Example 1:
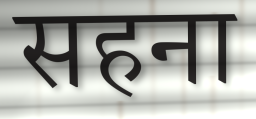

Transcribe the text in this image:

सहना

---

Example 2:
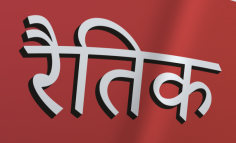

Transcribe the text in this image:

रैतिक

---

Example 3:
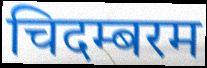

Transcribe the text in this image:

चिदम्बरम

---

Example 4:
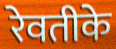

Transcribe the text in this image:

रेवतीके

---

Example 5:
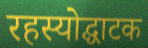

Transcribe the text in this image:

रहस्योद्घाटक